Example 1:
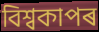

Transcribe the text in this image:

বিশ্বকাপৰ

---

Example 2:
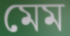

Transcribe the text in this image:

মেম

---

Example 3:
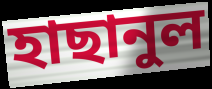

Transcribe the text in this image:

হাছানুল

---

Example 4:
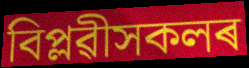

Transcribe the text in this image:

বিপ্লৱীসকলৰ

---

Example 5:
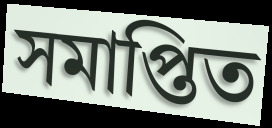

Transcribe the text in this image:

সমাপ্তিত